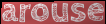
arouse